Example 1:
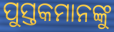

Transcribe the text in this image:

ପୁସ୍ତକମାନଙ୍କୁ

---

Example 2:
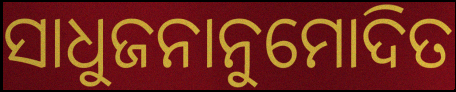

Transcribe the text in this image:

ସାଧୁଜନାନୁମୋଦିତ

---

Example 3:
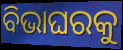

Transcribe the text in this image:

ବିଭାଘରକୁ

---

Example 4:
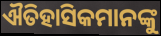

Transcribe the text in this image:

ଐତିହାସିକମାନଙ୍କୁ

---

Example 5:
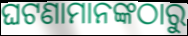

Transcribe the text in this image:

ଘଟଣାମାନଙ୍କଠାରୁ